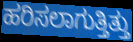
ಹರಿಸಲಾಗುತ್ತಿತ್ತು